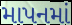
માપનમાં